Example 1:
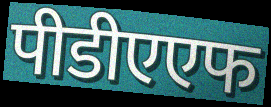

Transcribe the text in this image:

पीडीएएफ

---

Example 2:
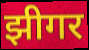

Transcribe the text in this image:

झीगर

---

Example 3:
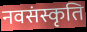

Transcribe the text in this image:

नवसंस्कृति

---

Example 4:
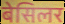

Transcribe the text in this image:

बेसिलर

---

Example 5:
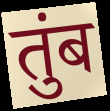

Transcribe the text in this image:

तुंब